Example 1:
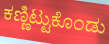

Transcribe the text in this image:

ಕಣ್ಣಿಟ್ಟುಕೊಂಡು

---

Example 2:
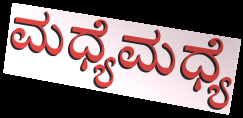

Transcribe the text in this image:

ಮಧ್ಯೆಮಧ್ಯೆ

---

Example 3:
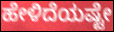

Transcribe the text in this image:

ಹೇಳಿದೆಯಷ್ಟೇ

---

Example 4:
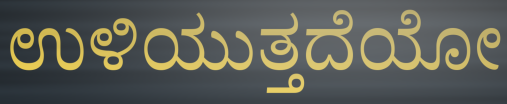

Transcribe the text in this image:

ಉಳಿಯುತ್ತದೆಯೋ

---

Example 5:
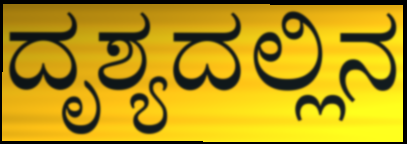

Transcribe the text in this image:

ದೃಶ್ಯದಲ್ಲಿನ